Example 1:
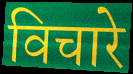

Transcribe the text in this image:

विचारे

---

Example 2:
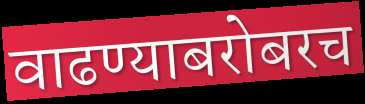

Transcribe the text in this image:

वाढण्याबरोबरच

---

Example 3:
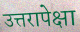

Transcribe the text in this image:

उत्तरापेक्षा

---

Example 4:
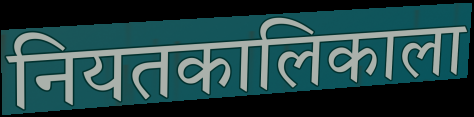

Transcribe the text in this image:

नियतकालिकाला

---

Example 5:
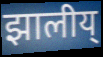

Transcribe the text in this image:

झालीय्